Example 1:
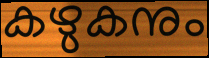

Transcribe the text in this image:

കഴുകനും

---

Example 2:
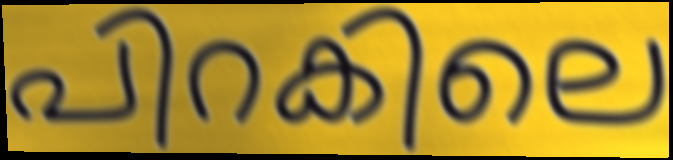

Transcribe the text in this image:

പിറകിലെ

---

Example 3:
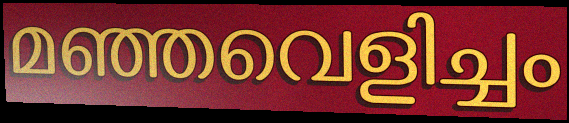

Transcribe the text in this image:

മഞ്ഞവെളിച്ചം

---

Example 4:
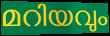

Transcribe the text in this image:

മറിയവും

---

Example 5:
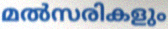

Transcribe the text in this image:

മൽസരികളും